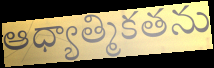
ఆధ్యాత్మికతను